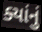
ક્યાંનું